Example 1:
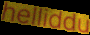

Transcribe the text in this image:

helliddu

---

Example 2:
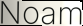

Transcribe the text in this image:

Noam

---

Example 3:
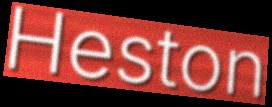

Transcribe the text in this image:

Heston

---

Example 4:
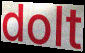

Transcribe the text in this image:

dolt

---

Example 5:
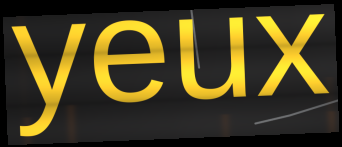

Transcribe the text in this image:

yeux